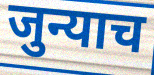
जुन्याच